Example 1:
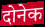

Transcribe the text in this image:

दोनेक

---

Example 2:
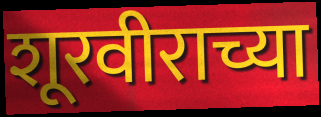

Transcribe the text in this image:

शूरवीराच्या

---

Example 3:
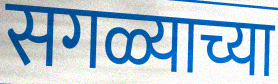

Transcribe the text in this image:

सगळ्याच्या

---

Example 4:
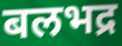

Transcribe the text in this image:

बलभद्र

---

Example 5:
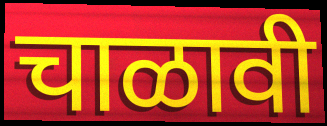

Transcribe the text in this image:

चाळावी